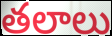
తలాలు